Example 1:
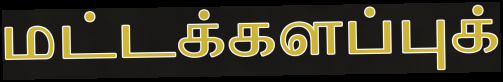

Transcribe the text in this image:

மட்டக்களப்புக்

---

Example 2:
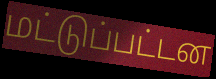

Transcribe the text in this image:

மட்டுப்பட்டன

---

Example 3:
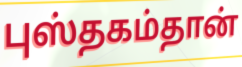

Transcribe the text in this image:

புஸ்தகம்தான்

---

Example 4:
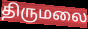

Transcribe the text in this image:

திருமலை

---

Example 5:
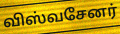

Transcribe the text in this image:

விஸ்வசேனர்